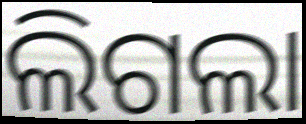
ଲିଗଲା